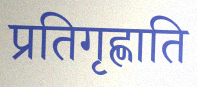
प्रतिगृह्णाति